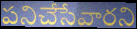
పనిచేసేవారని